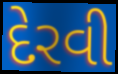
દેરવી